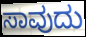
ಸಾವುದು